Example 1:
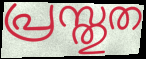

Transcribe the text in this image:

പ്രസ്തുത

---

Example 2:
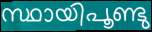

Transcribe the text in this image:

സ്ഥായിപൂണ്ടു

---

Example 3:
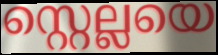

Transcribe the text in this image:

സ്റ്റെല്ലയെ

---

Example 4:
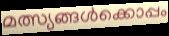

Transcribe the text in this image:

മത്സ്യങ്ങൾക്കൊപ്പം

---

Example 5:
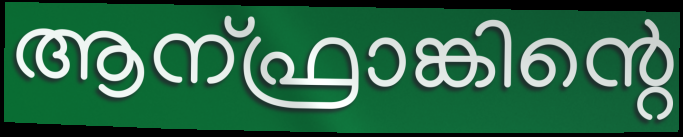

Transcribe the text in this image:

ആന്ഫ്രാങ്കിന്റെ